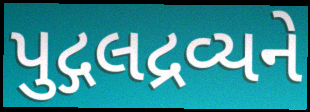
પુદ્ગલદ્રવ્યને